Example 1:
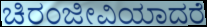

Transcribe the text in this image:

ಚಿರಂಜೀವಿಯಾದರೆ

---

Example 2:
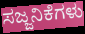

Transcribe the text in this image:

ಸಜ್ಜನಿಕೆಗಳು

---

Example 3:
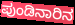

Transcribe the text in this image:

ಪುಂಡಿನಾರಿನ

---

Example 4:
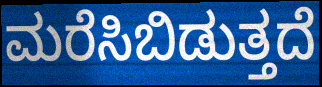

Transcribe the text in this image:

ಮರೆಸಿಬಿಡುತ್ತದೆ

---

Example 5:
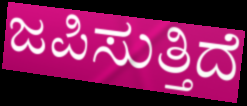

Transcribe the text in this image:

ಜಪಿಸುತ್ತಿದೆ